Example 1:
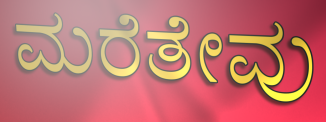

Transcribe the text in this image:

ಮರೆತೇವು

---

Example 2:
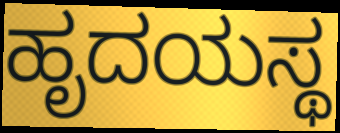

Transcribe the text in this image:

ಹೃದಯಸ್ಥ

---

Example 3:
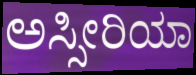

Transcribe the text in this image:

ಅಸ್ಸೀರಿಯಾ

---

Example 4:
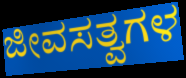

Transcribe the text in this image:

ಜೀವಸತ್ವಗಳ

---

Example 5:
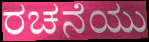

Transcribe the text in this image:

ರಚನೆಯು